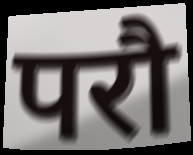
परौ